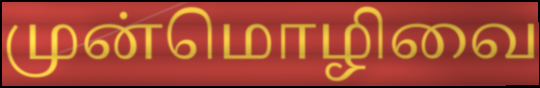
முன்மொழிவை